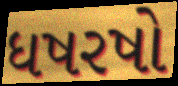
ધષરષો